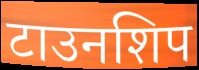
टाउनशिप